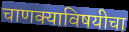
चाणक्याविषयीचा